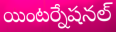
యింటర్నేషనల్